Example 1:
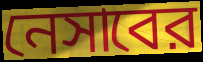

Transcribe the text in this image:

নেসাবের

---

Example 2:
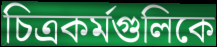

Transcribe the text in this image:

চিত্রকর্মগুলিকে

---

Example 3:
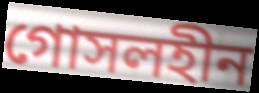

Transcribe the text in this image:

গোসলহীন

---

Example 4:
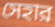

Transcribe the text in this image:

সেহার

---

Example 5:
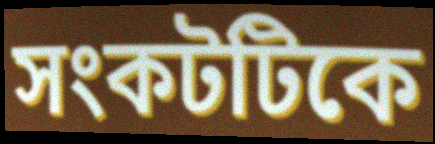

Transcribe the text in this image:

সংকটটিকে